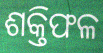
ଶକ୍ତିଫଳ